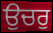
ਉਚਰੁ